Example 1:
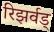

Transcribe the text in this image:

रिझर्वड्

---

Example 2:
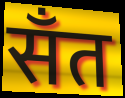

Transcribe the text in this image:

सँत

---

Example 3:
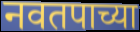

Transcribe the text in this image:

नवतपाच्या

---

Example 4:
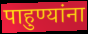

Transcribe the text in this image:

पाहुण्यांना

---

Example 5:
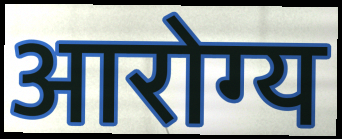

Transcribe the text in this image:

आरोग्य